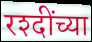
रश्दींच्या